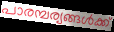
പാരമ്പര്യങ്ങൾക്ക്